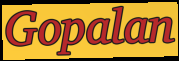
Gopalan